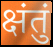
क्षंतुं